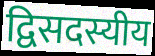
द्विसदस्यीय